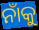
ନାଁକୁ